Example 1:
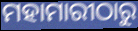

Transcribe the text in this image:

ମହାମାରୀଠାରୁ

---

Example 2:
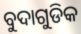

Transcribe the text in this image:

ବୁଦାଗୁଡିକ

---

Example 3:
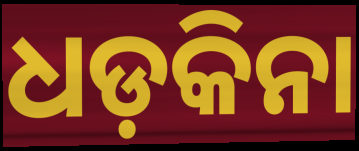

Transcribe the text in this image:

ଧଡ଼କିନା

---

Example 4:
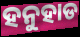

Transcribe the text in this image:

ହନୁହାଡ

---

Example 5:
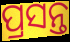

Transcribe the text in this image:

ପ୍ରସନ୍ତ